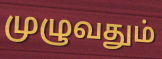
முழுவதும்